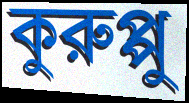
কুরুপ্পু